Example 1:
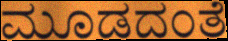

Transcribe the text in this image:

ಮೂಡದಂತೆ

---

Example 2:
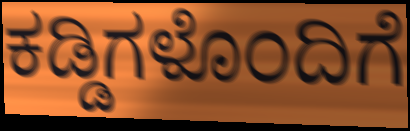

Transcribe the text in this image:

ಕಡ್ಡಿಗಳೊಂದಿಗೆ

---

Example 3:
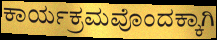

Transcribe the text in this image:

ಕಾರ್ಯಕ್ರಮವೊಂದಕ್ಕಾಗಿ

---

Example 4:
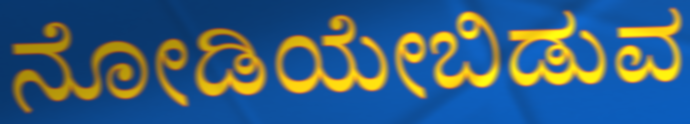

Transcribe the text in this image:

ನೋಡಿಯೇಬಿಡುವ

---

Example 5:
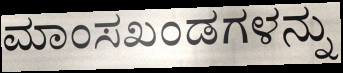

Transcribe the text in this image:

ಮಾಂಸಖಂಡಗಳನ್ನು